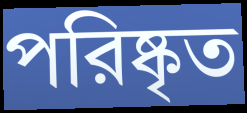
পরিষ্কৃত